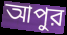
আপুর